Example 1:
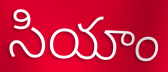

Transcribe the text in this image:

సియాం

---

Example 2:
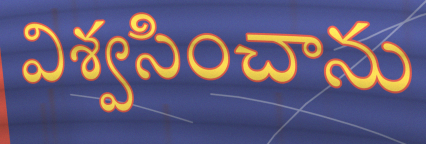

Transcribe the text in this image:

విశ్వసించాను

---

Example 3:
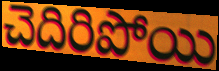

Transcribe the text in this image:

చెదిరిపోయి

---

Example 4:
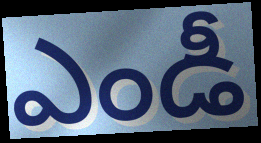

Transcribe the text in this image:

ఎండీ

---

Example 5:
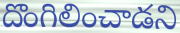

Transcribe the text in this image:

దొంగిలించాడని